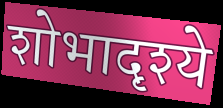
शोभादृश्ये